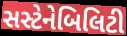
સસ્ટેનેબિલિટી